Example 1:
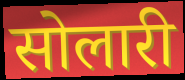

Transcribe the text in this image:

सोलारी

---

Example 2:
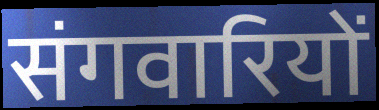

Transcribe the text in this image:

संगवारियों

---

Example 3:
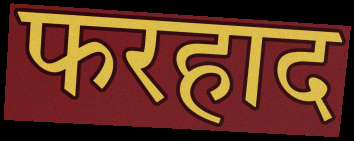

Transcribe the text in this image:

फरहाद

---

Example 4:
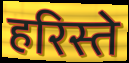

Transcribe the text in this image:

हरिस्ते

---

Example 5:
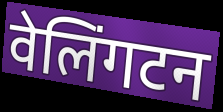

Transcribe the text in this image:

वेलिंगटन